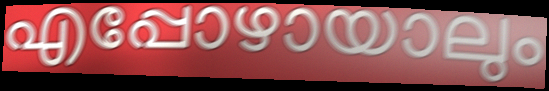
എപ്പോഴായാലും